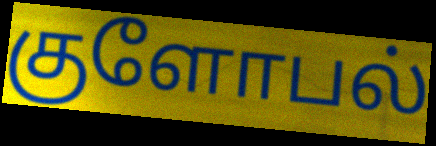
குளோபல்